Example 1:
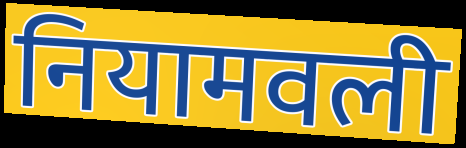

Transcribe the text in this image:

नियामवली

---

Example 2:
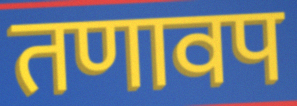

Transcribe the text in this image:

तणावप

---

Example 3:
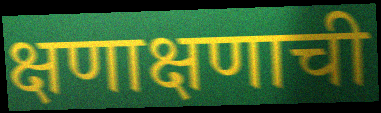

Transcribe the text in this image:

क्षणाक्षणाची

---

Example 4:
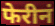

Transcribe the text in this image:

फेरीनं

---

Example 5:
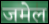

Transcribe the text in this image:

जमेल